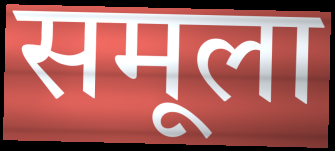
समूला